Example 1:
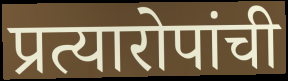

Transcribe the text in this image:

प्रत्यारोपांची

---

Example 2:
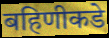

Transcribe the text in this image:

बहिणीकडे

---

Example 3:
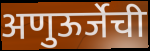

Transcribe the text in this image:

अणुऊर्जेची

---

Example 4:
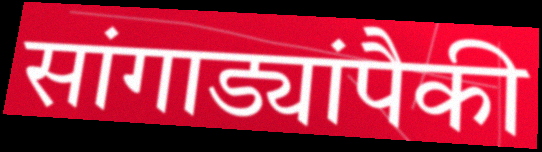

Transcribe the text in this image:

सांगाड्यांपैकी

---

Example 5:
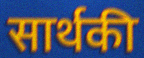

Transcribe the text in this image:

सार्थकी